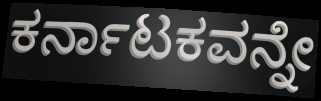
ಕರ್ನಾಟಕವನ್ನೇ